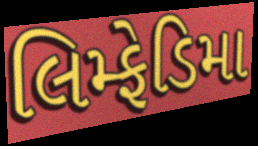
લિમ્ફેડિમા